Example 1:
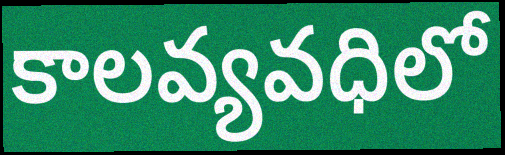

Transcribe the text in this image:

కాలవ్యవధిలో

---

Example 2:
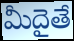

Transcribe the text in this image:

మీదైతే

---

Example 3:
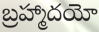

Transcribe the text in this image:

బ్రహ్మాదయో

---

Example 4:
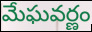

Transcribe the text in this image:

మేఘవర్ణం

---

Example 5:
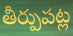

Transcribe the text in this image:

తీర్పుపట్ల